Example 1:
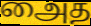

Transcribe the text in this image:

அைத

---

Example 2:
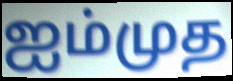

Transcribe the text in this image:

ஐம்முத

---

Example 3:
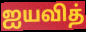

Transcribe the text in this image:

ஐயவித்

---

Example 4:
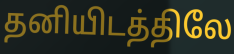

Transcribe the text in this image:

தனியிடத்திலே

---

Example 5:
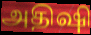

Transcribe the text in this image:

அதிஷி